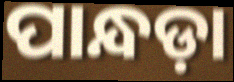
ପାନ୍ଧଡ଼ା